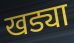
खड्या